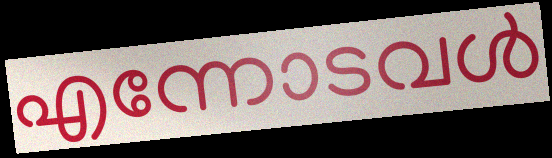
എന്നോടവൾ